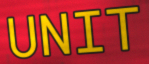
UNIT